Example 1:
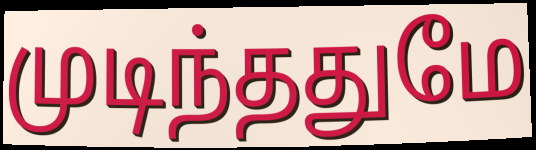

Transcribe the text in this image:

முடிந்ததுமே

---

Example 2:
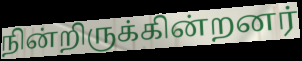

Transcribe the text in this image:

நின்றிருக்கின்றனர்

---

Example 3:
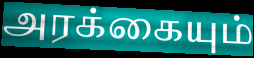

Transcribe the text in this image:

அரக்கையும்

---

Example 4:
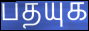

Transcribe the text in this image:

பதயுக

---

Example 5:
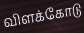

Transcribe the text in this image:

விளக்கோடு